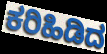
ಕರಿಹಿಡಿದ